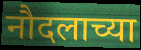
नौदलाच्या